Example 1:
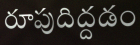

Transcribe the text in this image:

రూపుదిద్దడం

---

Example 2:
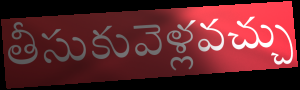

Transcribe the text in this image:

తీసుకువెళ్లవచ్చు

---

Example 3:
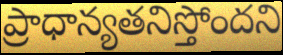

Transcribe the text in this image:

ప్రాధాన్యతనిస్తోందని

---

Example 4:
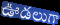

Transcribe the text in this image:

ఊడలుగా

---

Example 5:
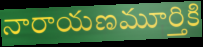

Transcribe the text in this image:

నారాయణమూర్తికి